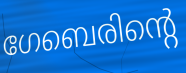
ഗേബെരിന്റെ